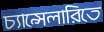
চ্যান্সেলারিতে